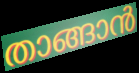
താങ്ങാൻ